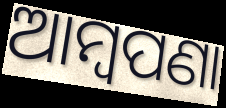
ଆମ୍ବପଣା